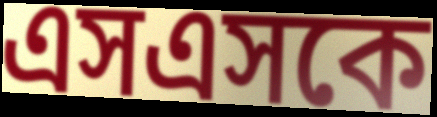
এসএসকে